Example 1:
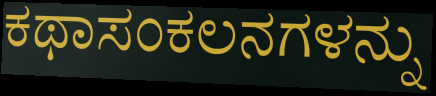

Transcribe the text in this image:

ಕಥಾಸಂಕಲನಗಳನ್ನು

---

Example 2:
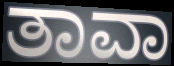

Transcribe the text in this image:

ತಾವಾ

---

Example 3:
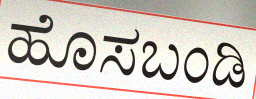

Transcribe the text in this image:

ಹೊಸಬಂಡಿ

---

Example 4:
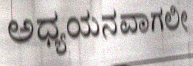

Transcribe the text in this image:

ಅಧ್ಯಯನವಾಗಲೀ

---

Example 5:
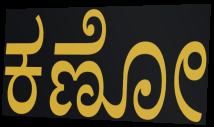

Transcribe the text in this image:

ಕಣೋ